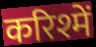
करिश्में